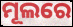
ମୂଲରେ